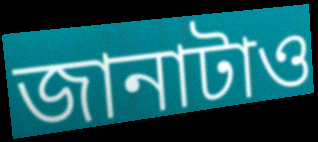
জানাটাও